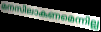
മനസിലാകണമെന്നില്ല